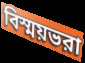
বিস্ময়ভরা